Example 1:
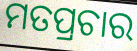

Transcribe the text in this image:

ମତପ୍ରଚାର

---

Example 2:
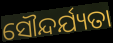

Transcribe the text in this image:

ସୌନ୍ଦର୍ଯ୍ୟତା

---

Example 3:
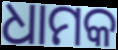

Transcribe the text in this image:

ଧାମକ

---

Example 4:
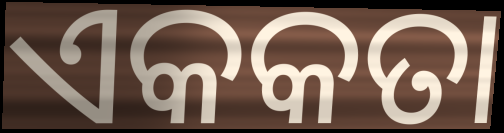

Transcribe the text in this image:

ଏକକତା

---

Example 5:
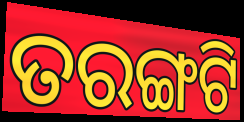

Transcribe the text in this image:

ତରଙ୍ଗଟି